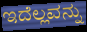
ಇದೆಲ್ಲವನ್ನು